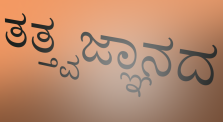
ತತ್ತ್ವಜ್ಞಾನದ